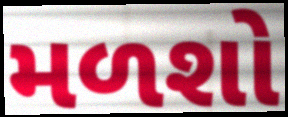
મળશો